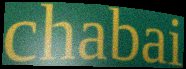
chabai